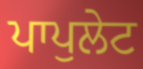
ਪਾਪੁਲੇਟ